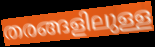
തരങ്ങളിലുള്ള